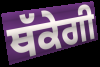
ਥੱਕੇਗੀ